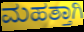
ಮಹತ್ತಾಗಿ